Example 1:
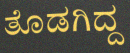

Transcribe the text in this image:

ತೊಡಗಿದ್ದ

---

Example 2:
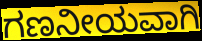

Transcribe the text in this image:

ಗಣನೀಯವಾಗಿ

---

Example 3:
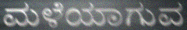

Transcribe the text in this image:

ಮಳೆಯಾಗುವ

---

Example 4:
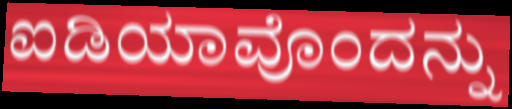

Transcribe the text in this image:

ಐಡಿಯಾವೊಂದನ್ನು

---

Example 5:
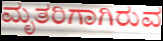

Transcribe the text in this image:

ಮೃತರಿಗಾಗಿರುವ